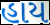
હાય